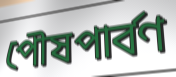
পৌষপার্বণ